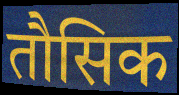
तौसिक